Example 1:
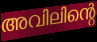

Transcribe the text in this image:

അവിലിന്റെ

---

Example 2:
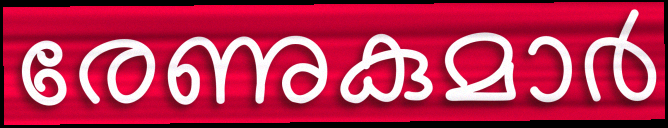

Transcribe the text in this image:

രേണുകുമാർ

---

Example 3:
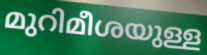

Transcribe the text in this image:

മുറിമീശയുള്ള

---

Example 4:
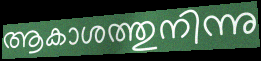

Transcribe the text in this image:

ആകാശത്തുനിന്നു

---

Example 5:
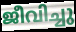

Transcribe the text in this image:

ജീവിച്ചു